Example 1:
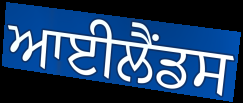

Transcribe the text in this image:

ਆਈਲੈਂਡਸ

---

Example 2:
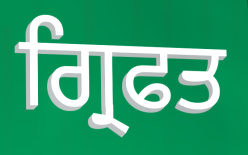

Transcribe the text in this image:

ਗ੍ਰਿਫਤ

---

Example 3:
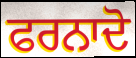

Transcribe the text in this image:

ਫਰਨਾਦੋ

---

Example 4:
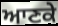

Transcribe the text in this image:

ਆਣਕੇ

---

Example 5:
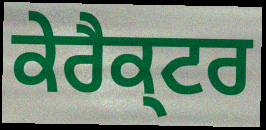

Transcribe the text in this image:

ਕੇਰੈਕ੍ਟਰ